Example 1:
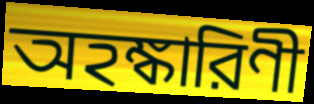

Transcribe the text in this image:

অহঙ্কারিণী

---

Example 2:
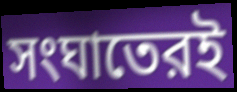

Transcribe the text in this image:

সংঘাতেরই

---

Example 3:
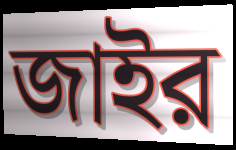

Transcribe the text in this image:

জাইর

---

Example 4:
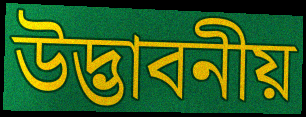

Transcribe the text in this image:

উদ্ভাবনীয়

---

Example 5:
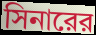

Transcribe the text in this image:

সিনারের